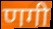
णगी